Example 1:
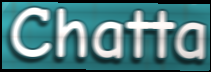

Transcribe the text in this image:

Chatta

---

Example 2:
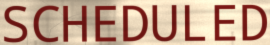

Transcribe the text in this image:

SCHEDULED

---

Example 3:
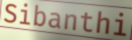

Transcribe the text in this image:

Sibanthi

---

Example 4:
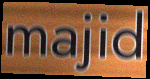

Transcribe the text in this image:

majid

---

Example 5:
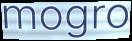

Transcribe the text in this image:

mogro